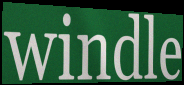
windle